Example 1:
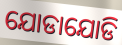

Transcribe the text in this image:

ଯୋଡାଯୋଡି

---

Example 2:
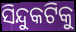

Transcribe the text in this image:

ସିନ୍ଦୁକଟିକୁ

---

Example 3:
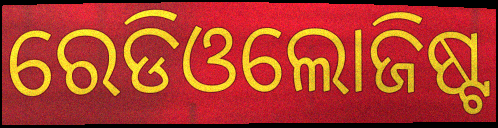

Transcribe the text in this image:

ରେଡିଓଲୋଜିଷ୍ଟ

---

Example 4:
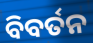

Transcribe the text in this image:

ବିବର୍ତନ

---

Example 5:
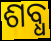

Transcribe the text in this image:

ଶବ୍ଧ